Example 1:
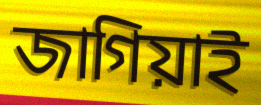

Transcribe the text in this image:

জাগিয়াই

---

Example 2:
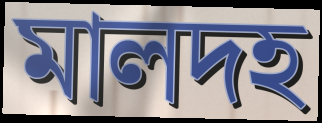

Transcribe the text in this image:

মালদহ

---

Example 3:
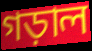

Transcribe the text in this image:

গড়াল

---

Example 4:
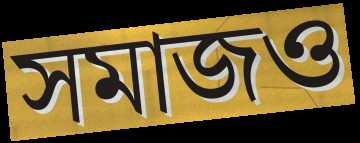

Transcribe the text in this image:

সমাজও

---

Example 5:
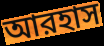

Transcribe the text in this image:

আরহাস